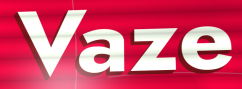
Vaze